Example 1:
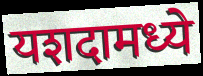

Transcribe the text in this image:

यशदामध्ये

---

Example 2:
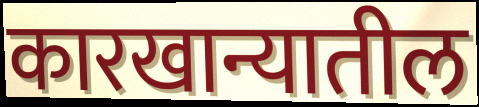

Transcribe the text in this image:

कारखान्यातील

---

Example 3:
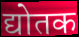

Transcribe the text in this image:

द्योतक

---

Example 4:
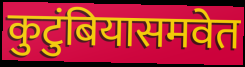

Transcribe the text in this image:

कुटुंबियासमवेत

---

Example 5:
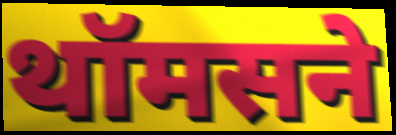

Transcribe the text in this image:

थॉमसने